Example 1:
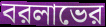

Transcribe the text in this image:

বরলাভের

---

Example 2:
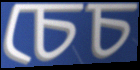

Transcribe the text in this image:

চেচ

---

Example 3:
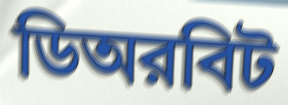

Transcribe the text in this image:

ডিঅরবিট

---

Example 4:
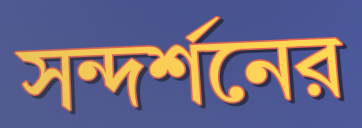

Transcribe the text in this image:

সন্দর্শনের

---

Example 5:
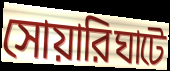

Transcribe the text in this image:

সোয়ারিঘাটে